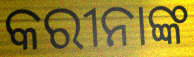
କରୀନାଙ୍କ